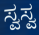
ಸ್ವಸ್ವ